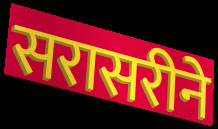
सरासरीने